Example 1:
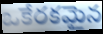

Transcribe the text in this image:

ఒకేరకమైన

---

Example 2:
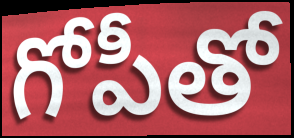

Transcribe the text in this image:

గోపీతో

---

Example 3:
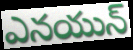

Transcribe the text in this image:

ఎనయున్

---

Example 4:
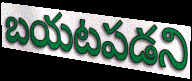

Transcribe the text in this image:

బయటపడని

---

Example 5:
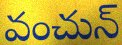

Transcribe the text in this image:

వంచున్